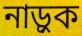
নাড়ুক